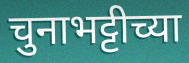
चुनाभट्टीच्या